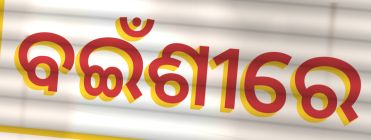
ବଇଁଶୀରେ